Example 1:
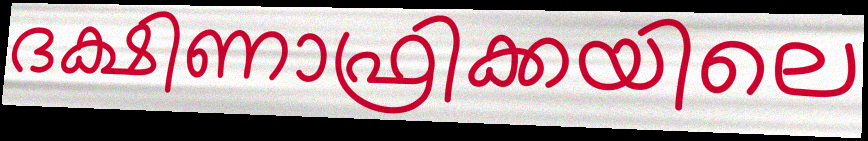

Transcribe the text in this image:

ദക്ഷിണാഫ്രിക്കയിലെ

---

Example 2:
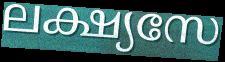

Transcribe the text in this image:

ലക്ഷ്യസേ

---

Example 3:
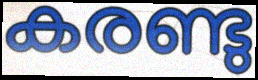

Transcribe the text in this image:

കരണ്ടു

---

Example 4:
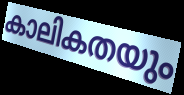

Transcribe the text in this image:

കാലികതയും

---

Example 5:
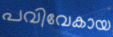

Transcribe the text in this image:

പവിവേകായ